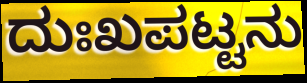
ದುಃಖಪಟ್ಟನು